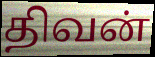
திவன்